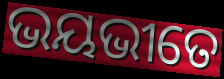
ଭୟଭୀତେ